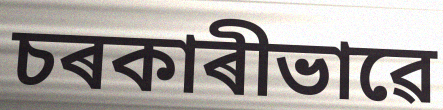
চৰকাৰীভাৱে